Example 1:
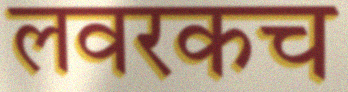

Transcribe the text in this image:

लवरकच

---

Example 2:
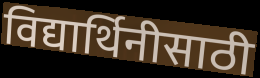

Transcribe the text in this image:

विद्यार्थिनीसाठी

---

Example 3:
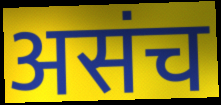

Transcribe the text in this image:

असंच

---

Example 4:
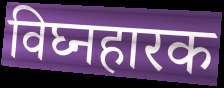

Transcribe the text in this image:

विघ्नहारक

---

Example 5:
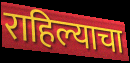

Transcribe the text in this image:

राहिल्याचा